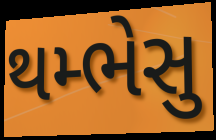
થમ્ભેસુ